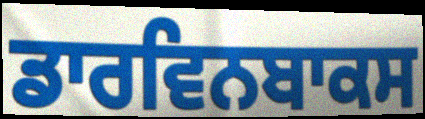
ਡਾਰਵਿਨਬਾਕਸ